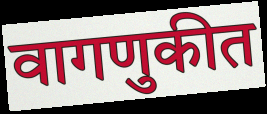
वागणुकीत